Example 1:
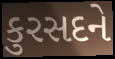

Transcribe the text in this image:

કુરસદને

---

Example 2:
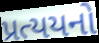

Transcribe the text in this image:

પ્રત્યયનો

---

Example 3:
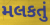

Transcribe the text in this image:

મલકતું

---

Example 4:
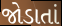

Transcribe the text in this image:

જોડાતાં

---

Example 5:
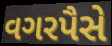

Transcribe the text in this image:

વગરપૈસે